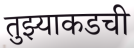
तुझ्याकडची